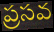
ప్రసవ